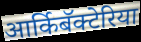
आर्किबॅक्टेरिया